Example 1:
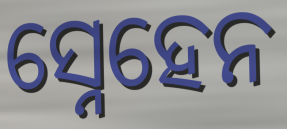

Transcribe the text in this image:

ସ୍ନେହେନ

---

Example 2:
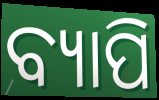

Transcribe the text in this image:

ବ୍ୟାପି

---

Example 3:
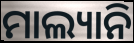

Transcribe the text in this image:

ମାଲ୍ୟାନି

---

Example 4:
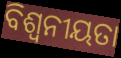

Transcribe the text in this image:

ବିଶ୍ୱନୀୟତା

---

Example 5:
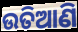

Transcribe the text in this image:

ଉତିଆଣି